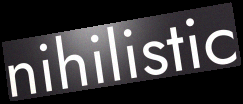
nihilistic